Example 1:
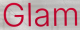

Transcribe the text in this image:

Glam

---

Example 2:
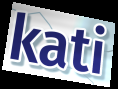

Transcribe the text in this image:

kati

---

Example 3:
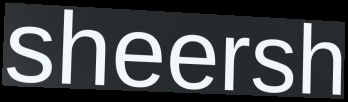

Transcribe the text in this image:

sheersh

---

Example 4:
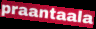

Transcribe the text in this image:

praantaala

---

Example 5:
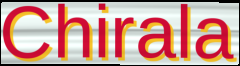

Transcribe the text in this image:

Chirala